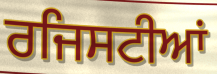
ਰਜਿਸਟੀਆਂ